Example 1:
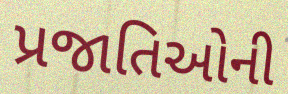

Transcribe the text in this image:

પ્રજાતિઓની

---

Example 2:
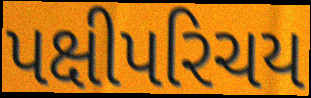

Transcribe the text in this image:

પક્ષીપરિચય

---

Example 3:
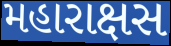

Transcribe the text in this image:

મહારાક્ષસ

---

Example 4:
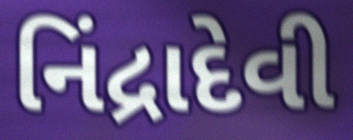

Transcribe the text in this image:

નિંદ્રાદેવી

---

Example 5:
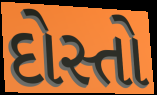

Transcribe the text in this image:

દોસ્તો